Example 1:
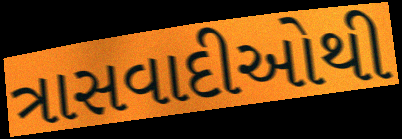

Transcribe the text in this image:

ત્રાસવાદીઓથી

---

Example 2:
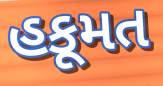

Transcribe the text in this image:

હકૂમત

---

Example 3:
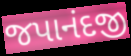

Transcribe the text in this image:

જપાનંદજી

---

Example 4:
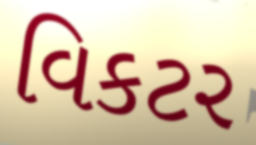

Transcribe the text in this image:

વિકટર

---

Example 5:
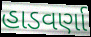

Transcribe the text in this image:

હાડવર્ણા